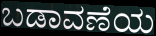
ಬಡಾವಣೆಯ